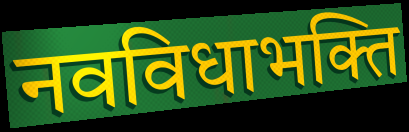
नवविधाभक्ति